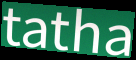
tatha